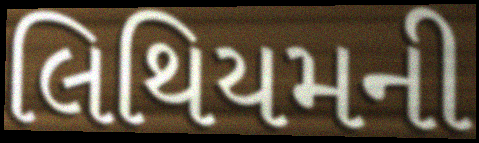
લિથિયમની